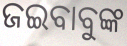
ଜଇବାବୁଙ୍କ